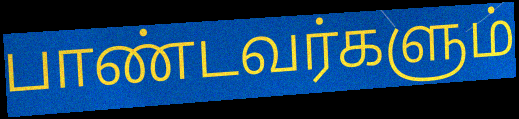
பாண்டவர்களும்